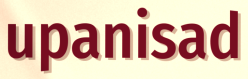
upanisad